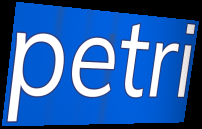
petri